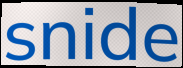
snide